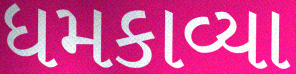
ધમકાવ્યા